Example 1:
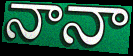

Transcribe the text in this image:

నానా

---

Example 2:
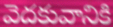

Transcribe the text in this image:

వెదకువానికి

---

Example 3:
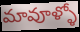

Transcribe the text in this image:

మావూళ్ళో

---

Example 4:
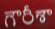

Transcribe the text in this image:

గౌరీశా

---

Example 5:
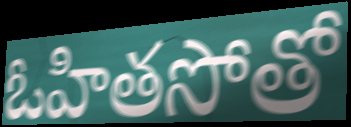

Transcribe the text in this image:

ఓహితసోతో